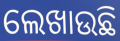
ଲେଖାଉଛି